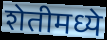
शेतीमध्ये